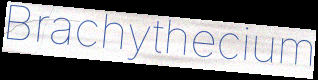
Brachythecium